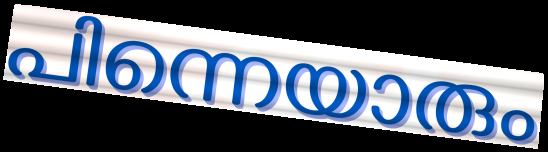
പിന്നെയാരും